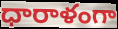
ధారాళంగా